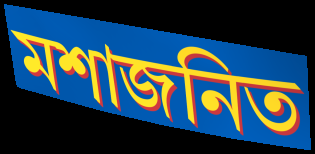
মশাজনিত